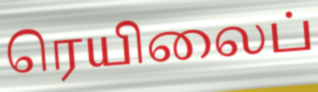
ரெயிலைப்